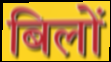
बिलों